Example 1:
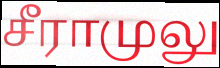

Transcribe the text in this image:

சீராமுலு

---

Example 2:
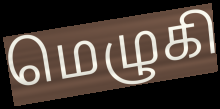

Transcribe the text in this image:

மெழுகி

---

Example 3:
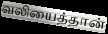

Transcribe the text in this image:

வலியைத்தான்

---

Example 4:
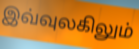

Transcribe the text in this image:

இவ்வுலகிலும்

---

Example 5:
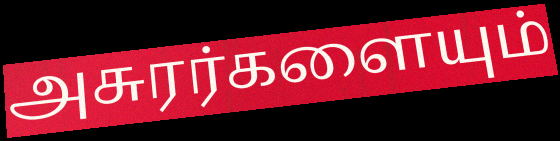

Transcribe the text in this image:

அசுரர்களையும்